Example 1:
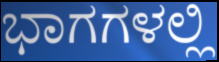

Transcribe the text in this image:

ಭಾಗಗಳಲ್ಲಿ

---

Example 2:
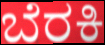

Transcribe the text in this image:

ಬೆರಕಿ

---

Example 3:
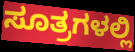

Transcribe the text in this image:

ಸೂತ್ರಗಳಲ್ಲಿ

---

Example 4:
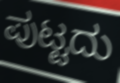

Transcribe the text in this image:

ಪುಟ್ಟದು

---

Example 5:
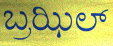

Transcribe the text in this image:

ಬ್ರಝಿಲ್